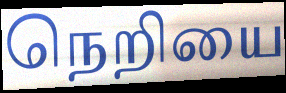
நெறியை